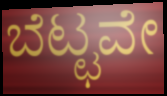
ಬೆಟ್ಟವೇ